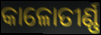
କାଳୋତୀର୍ଣ୍ଣ